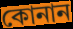
কোনান